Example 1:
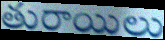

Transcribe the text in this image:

తురాయిలు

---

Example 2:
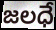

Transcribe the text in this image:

జలధే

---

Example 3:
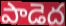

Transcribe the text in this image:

పాడెద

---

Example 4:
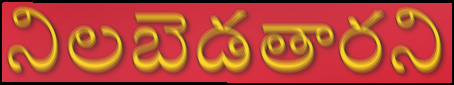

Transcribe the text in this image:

నిలబెడతారని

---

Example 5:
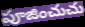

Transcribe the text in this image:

పూజించుచు